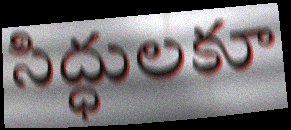
సిద్ధులకూ